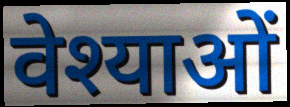
वेश्याओं